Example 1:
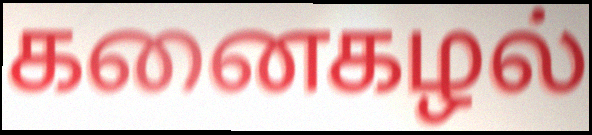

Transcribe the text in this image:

கனைகழல்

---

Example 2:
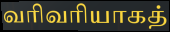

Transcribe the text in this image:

வரிவரியாகத்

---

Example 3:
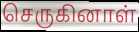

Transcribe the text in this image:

செருகினாள்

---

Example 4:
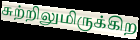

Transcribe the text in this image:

சுற்றிலுமிருக்கிற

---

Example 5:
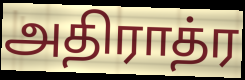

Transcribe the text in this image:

அதிராத்ர